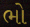
ભો